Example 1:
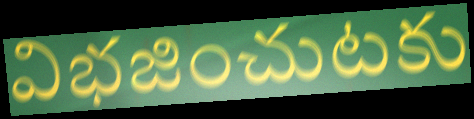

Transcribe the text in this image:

విభజించుటకు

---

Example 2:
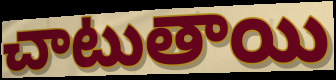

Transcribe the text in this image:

చాటుతాయి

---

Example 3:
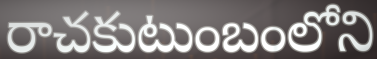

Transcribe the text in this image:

రాచకుటుంబంలోని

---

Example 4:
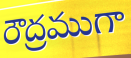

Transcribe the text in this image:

రౌద్రముగా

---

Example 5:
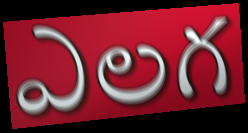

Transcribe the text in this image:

ఎలగ